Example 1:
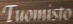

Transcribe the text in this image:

Tuomisto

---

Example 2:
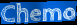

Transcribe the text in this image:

Chemo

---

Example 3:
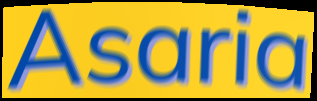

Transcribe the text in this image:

Asaria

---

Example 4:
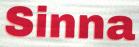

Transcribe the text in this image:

Sinna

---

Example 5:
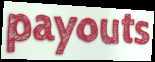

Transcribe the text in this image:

payouts